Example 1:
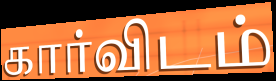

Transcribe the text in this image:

கார்விடம்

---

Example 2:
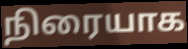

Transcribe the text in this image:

நிரையாக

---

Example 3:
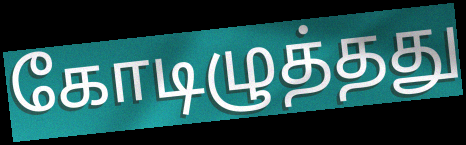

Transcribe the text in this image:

கோடிழுத்தது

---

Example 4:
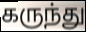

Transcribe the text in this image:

கருந்து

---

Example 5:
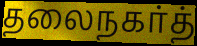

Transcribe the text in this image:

தலைநகர்த்